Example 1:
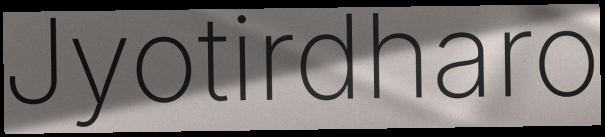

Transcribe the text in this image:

Jyotirdharo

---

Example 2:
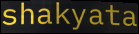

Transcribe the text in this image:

shakyata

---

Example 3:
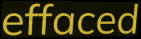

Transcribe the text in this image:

effaced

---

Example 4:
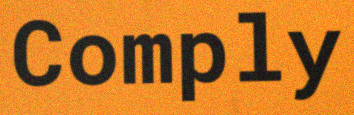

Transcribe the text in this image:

Comply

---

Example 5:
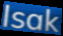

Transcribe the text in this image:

Isak